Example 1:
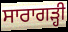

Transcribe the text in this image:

ਸਾਰਾਗੜ੍ਹੀ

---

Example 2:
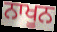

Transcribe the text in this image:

ਨਾਖੂਨ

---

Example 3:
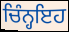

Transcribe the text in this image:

ਚਿੰਨ੍ਹਇਹ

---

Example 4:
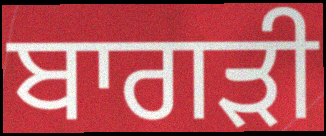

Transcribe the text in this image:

ਬਾਗੜੀ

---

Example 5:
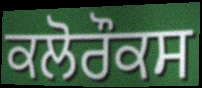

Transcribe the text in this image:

ਕਲੋਰੌਕਸ